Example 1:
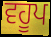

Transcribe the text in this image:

ਵਹੂਪ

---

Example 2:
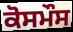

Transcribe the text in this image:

ਕੋਸਮੌਸ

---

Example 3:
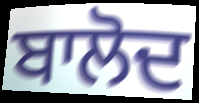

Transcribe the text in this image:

ਬਾਲੋਦ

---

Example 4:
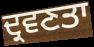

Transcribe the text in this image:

ਦ੍ਰਵਣਤਾ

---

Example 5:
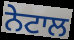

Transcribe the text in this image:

ਨੇਟਾਲ